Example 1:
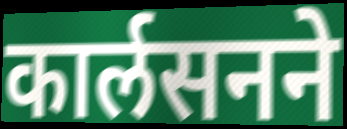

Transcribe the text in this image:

कार्लसनने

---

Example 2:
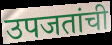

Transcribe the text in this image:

उपजतांची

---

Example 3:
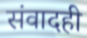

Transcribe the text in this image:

संवादही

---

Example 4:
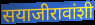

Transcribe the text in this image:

सयाजीरावांशी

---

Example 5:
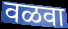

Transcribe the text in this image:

वळवा